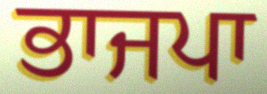
ਭਾਜਪਾ